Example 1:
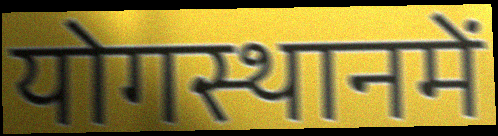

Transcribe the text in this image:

योगस्थानमें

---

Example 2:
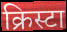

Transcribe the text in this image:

क्रिस्टा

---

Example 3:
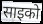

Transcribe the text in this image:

साइको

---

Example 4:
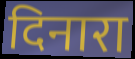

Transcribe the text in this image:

दिनारा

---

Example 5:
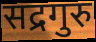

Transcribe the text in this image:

सद्रगुरु